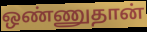
ஒண்ணுதான்